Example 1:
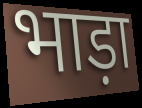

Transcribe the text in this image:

भाड़ा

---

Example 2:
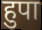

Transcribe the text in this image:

हुपा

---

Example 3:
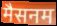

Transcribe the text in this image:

मैसनम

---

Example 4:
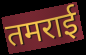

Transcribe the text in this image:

तमराई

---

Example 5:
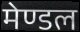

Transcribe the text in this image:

मेण्डल